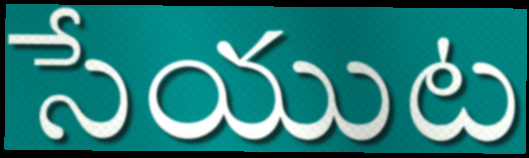
సేయుట